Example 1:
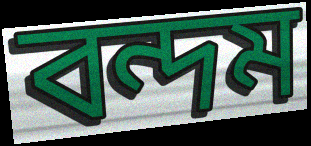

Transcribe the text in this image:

বন্দম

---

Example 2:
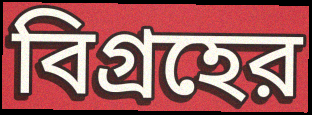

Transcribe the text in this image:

বিগ্রহের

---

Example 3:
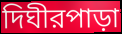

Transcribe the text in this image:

দিঘীরপাড়া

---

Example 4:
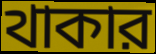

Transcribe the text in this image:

থাকার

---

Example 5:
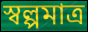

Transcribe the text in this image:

স্বল্পমাত্র